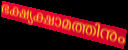
ഭക്ഷ്യക്ഷാമത്തിനും